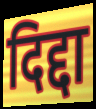
दिद्दा